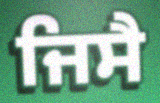
ਜਿਸੈ